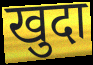
खुदा